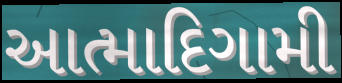
આત્માદિગામી